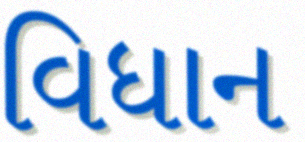
વિધાન